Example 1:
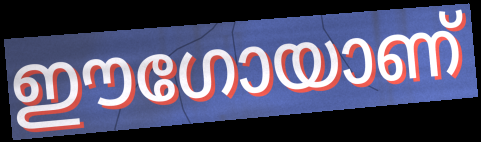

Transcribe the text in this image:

ഈഗോയാണ്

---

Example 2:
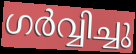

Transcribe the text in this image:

ഗർവ്വിച്ചു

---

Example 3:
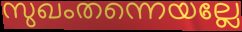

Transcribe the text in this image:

സുഖംതന്നെയല്ലേ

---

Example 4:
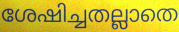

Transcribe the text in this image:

ശേഷിച്ചതല്ലാതെ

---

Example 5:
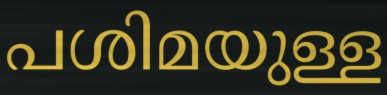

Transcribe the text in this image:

പശിമയുള്ള